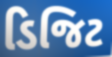
ડિજિટ